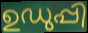
ഉഡുപ്പി